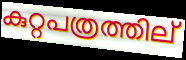
കുറ്റപത്രത്തില്